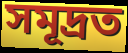
সমূদ্ৰত